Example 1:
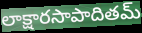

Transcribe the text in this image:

లాక్షారసాపాదితమ్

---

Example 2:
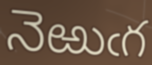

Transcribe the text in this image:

నెఱుఁగ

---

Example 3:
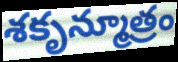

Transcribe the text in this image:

శకృన్మూత్రం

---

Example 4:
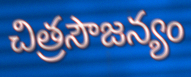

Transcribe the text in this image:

చిత్రసౌజన్యం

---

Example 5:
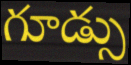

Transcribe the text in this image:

గూడ్సు